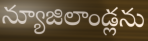
న్యూజిలాండ్లను